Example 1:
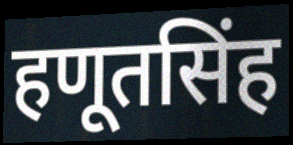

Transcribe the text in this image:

हणूतसिंह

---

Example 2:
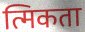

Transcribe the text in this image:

त्मिकता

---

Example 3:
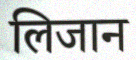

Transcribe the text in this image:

लिजान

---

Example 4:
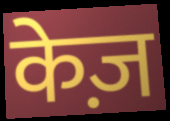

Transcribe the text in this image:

केज़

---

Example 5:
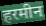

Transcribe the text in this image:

हरमीन